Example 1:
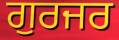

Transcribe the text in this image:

ਗੁਰਜਰ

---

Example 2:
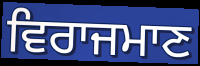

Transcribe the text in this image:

ਵਿਰਾਜਮਾਣ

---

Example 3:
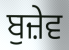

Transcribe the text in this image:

ਬੁਜ਼ੇਵ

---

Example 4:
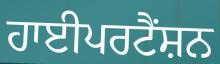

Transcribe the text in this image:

ਹਾਈਪਰਟੈਂਸ਼ਨ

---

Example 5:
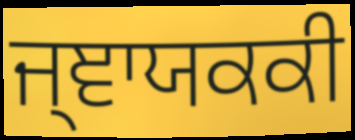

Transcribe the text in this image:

ਜ੍ਞਾਯਕਕੀ